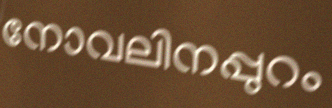
നോവലിനപ്പുറം